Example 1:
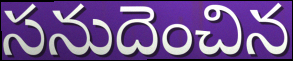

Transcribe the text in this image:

సనుదెంచిన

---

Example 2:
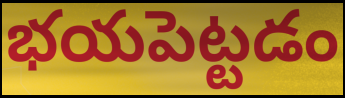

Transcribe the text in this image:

భయపెట్టడం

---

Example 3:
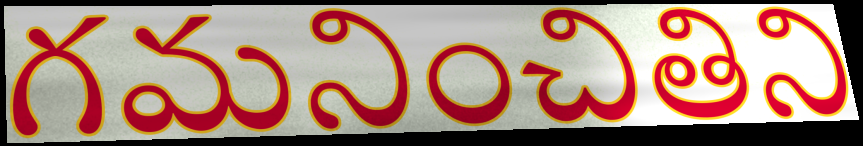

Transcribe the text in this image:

గమనించితిని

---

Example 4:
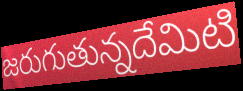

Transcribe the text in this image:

జరుగుతున్నదేమిటి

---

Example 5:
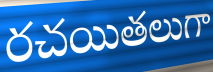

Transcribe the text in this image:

రచయితలుగా